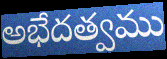
అభేదత్వము